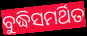
ବୁଦ୍ଧିସମର୍ଥିତ